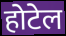
होटेल